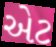
એટ